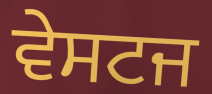
ਵੇਸਟਜ